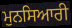
ਮੁਨਸਿਆਰੀ